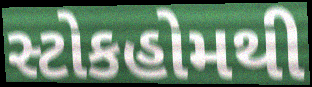
સ્ટોકહોમથી